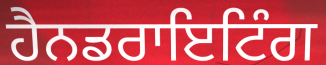
ਹੈਨਡਰਾਇਟਿੰਗ